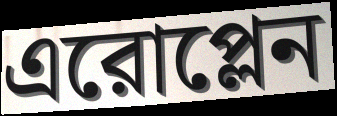
এরোপ্লেন